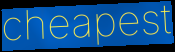
cheapest